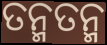
ତନ୍ମତନ୍ମ